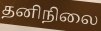
தனிநிலை